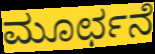
ಮೂರ್ಛನೆ